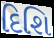
દિશિ